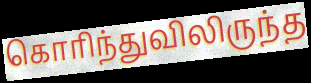
கொரிந்துவிலிருந்த